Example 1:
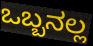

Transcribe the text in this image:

ಒಬ್ಬನಲ್ಲ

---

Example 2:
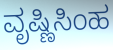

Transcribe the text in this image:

ವೃಷ್ಣಿಸಿಂಹ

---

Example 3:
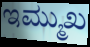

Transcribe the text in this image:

ಇಮ್ಮುಖ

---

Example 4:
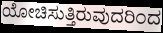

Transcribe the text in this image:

ಯೋಚಿಸುತ್ತಿರುವುದರಿಂದ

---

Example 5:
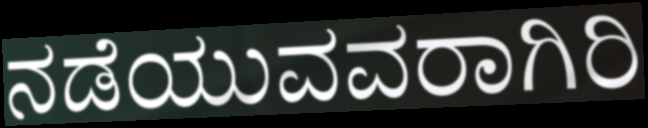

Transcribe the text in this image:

ನಡೆಯುವವರಾಗಿರಿ